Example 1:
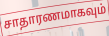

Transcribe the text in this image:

சாதாரணமாகவும்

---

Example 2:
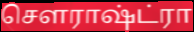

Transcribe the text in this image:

சௌராஷ்ட்ரா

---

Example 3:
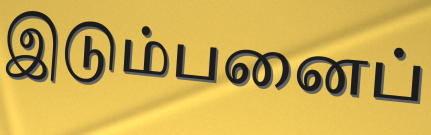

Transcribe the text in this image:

இடும்பனைப்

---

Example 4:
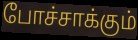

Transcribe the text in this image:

போச்சாக்கும்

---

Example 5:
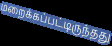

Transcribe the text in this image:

மறைக்கப்பட்டிருந்தது